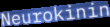
Neurokinin